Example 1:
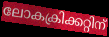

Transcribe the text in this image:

ലോകക്രിക്കറ്റിന്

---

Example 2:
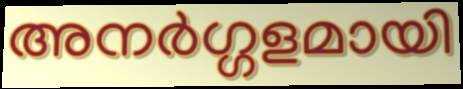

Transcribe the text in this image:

അനർഗ്ഗളമായി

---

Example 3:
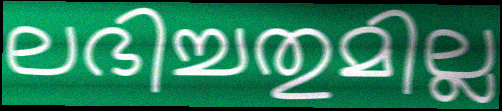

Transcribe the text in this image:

ലഭിച്ചതുമില്ല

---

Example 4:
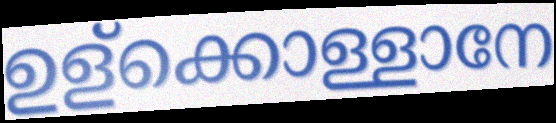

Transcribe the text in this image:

ഉള്ക്കൊള്ളാനേ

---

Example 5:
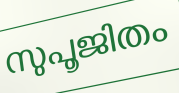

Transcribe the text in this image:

സുപൂജിതം